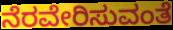
ನೆರವೇರಿಸುವಂತೆ